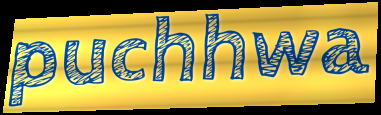
puchhwa